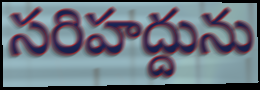
సరిహద్దును